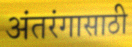
अंतरंगासाठी